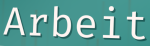
Arbeit